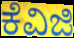
ಕೆವಿಜಿ